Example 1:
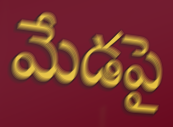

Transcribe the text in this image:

మేడపై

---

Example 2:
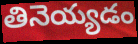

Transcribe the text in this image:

తినెయ్యడం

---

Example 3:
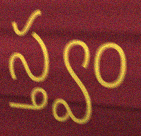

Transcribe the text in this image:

స్త్వం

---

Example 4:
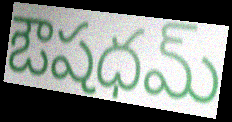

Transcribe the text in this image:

ఔషధమ్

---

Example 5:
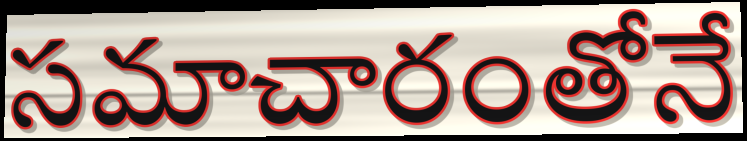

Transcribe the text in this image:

సమాచారంతోనే